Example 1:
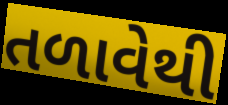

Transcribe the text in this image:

તળાવેથી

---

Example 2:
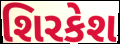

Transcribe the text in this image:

શિરકેશ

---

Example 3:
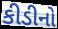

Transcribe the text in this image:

કીડીનો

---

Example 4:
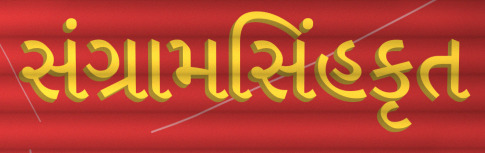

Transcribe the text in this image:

સંગ્રામસિંહકૃત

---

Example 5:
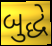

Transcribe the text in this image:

બુદ્ધે